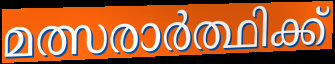
മത്സരാർത്ഥിക്ക്